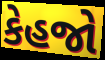
કેહજો